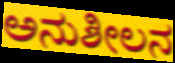
ಅನುಶೀಲನ